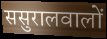
ससुरालवालों